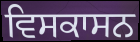
ਵਿਸਕਾਸਨ